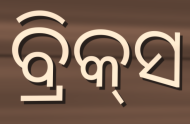
ବ୍ରିକ୍‌ସ